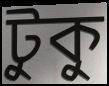
টুকু